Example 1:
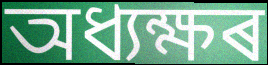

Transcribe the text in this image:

অধ্যক্ষৰ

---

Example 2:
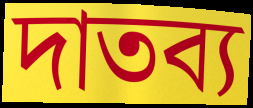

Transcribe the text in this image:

দাতব্য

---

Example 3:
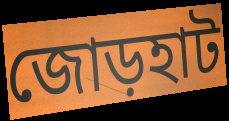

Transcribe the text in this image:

জোড়হাট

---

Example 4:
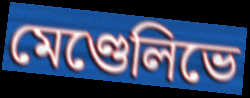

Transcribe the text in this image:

মেণ্ডেলিভে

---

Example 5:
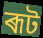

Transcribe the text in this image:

ৰূট